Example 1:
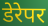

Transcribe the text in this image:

डेरेपर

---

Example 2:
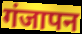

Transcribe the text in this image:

गंजापन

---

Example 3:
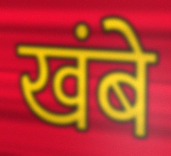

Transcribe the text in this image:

खंबे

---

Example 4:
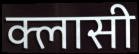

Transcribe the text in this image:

क्लासी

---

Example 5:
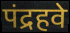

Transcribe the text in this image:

पंद्रहवे